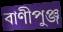
বাণীপুঞ্জ